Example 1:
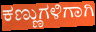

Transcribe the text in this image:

ಕಣ್ಣುಗಳಿಗಾಗಿ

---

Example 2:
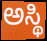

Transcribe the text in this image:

ಅಸ್ಥಿ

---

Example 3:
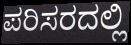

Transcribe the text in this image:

ಪರಿಸರದಲ್ಲಿ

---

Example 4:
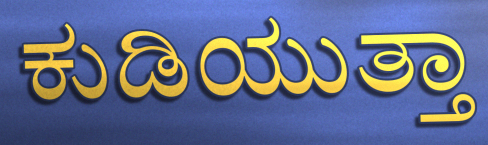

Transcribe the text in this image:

ಕುಡಿಯುತ್ತಾ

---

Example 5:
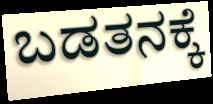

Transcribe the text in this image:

ಬಡತನಕ್ಕೆ